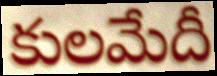
కులమేదీ